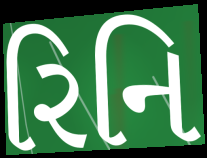
રિનિ